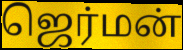
ஜெர்மன்